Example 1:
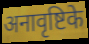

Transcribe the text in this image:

अनावृष्टिके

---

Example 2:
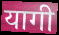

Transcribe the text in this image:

यागी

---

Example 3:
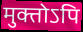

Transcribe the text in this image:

मुक्तोऽपि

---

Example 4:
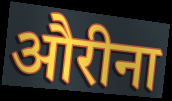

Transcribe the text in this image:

औरीना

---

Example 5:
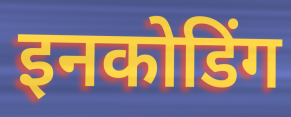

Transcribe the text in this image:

इनकोडिंग